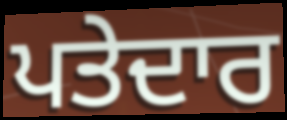
ਪਤੇਦਾਰ